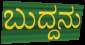
ಬುದ್ದನು